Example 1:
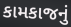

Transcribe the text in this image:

કામકાજનું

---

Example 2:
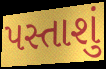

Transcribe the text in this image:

પસ્તાશું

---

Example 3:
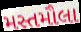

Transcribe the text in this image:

મસ્તમૌલા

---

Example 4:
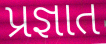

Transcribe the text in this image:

પ્રજ્ઞાત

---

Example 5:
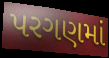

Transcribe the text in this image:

પરગણમાં